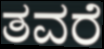
ತವರೆ